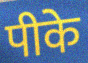
पीके